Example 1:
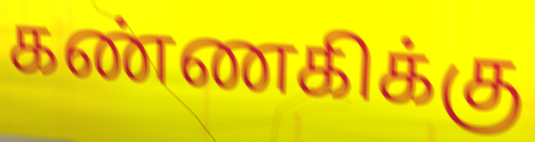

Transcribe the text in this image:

கண்ணகிக்கு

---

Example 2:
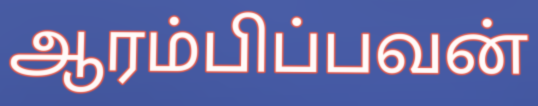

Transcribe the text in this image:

ஆரம்பிப்பவன்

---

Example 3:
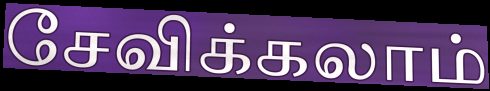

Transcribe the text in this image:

சேவிக்கலாம்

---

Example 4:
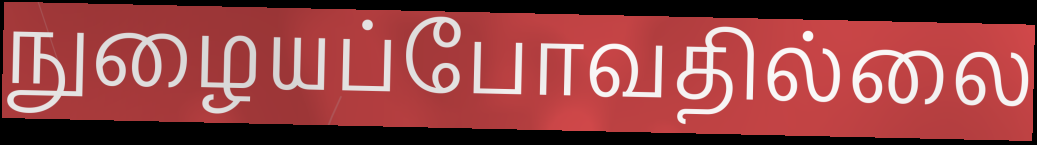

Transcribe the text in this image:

நுழையப்போவதில்லை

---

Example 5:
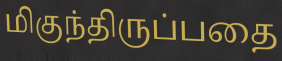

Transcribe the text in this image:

மிகுந்திருப்பதை